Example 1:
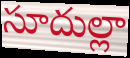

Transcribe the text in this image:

సూదుల్లా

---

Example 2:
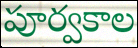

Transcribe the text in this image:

పూర్వకాల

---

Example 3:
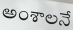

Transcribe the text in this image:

అంశాలనే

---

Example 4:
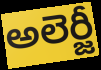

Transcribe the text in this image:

అలెర్జీ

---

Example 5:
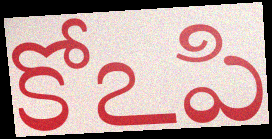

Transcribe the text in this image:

కోఽపి